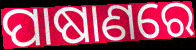
ପାଷାଣରେ